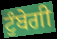
ਟੁੰਬੇਗੀ